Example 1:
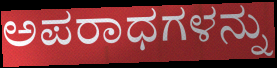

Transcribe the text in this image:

ಅಪರಾಧಗಳನ್ನು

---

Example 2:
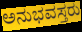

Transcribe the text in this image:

ಅನುಭವಸ್ತರು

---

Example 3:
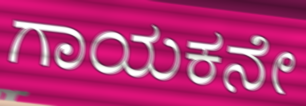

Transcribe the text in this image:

ಗಾಯಕನೇ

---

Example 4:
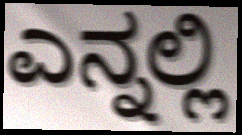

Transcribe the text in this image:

ಎನ್ನಲ್ಲಿ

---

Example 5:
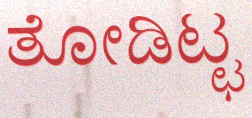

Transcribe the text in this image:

ತೋಡಿಟ್ಟ